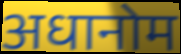
अधानोम